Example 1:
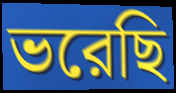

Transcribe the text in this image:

ভরেছি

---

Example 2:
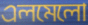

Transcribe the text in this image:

এলমেলো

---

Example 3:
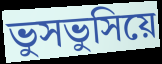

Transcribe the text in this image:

ভুসভুসিয়ে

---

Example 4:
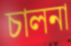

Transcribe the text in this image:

চালনা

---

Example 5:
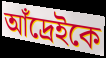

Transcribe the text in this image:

আঁদ্রেইকে